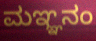
ಮಞ್ಞನಂ